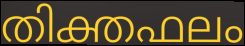
തിക്തഫലം